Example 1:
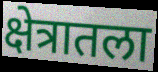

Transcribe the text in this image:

क्षेत्रातला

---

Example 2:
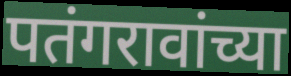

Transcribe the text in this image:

पतंगरावांच्या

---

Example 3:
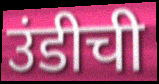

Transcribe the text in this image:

उंडीची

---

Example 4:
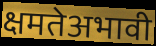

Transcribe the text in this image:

क्षमतेअभावी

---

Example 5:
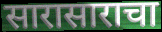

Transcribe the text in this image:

सारासाराचा